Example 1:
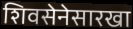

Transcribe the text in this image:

शिवसेनेसारखा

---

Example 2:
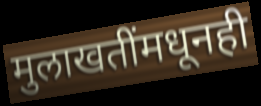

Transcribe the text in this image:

मुलाखतींमधूनही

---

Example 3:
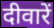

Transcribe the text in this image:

दीवारें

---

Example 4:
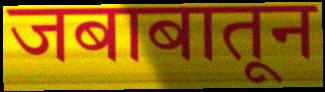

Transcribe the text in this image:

जबाबातून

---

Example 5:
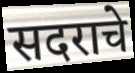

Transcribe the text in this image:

सदराचे